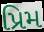
પ્રિમ